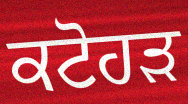
ਕਟੋਹੜ